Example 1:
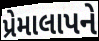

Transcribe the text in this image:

પ્રેમાલાપને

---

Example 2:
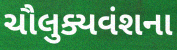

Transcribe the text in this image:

ચૌલુક્યવંશના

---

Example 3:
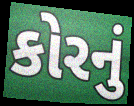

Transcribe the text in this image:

કોરનું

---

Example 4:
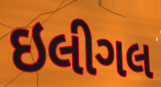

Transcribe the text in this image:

ઇલીગલ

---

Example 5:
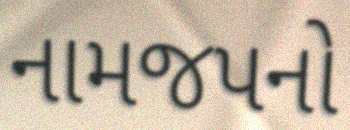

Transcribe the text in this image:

નામજપનો